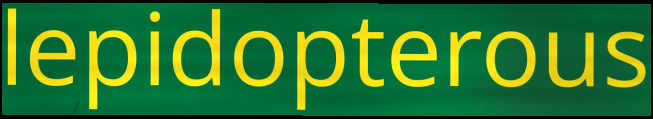
lepidopterous